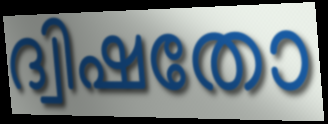
ദ്വിഷതോ